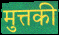
मुत्तकी